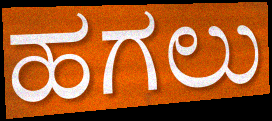
ಹಗಲು